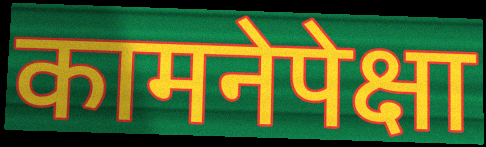
कामनेपेक्षा